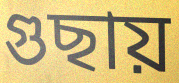
গুছায়